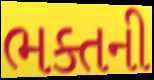
ભક્તની